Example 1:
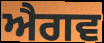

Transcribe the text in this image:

ਐਗਵ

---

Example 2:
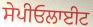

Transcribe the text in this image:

ਸੇਪੀਓਲਾਈਟ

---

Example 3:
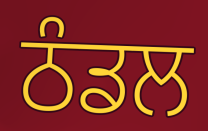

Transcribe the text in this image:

ਠੰਡਲ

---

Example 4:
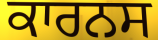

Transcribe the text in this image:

ਕਾਰਨਸ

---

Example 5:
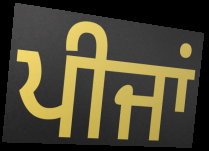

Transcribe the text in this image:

ਪੀਜਾਂ